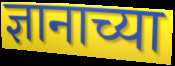
ज्ञानाच्या